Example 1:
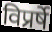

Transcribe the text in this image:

विप्रर्षे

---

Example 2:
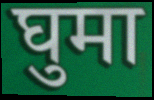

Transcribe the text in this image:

घुमा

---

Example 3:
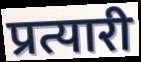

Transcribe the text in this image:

प्रत्यारी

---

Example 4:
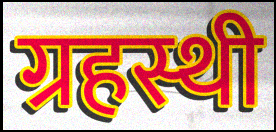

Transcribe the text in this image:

ग्रहस्थी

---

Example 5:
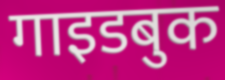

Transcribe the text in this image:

गाइडबुक